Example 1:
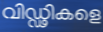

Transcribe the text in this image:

വിഡ്ഢികളെ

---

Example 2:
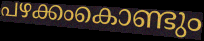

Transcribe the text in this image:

പഴക്കംകൊണ്ടും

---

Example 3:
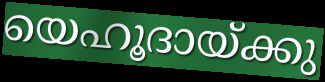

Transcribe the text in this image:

യെഹൂദായ്ക്കു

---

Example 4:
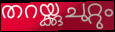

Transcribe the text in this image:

തറയ്ക്കുചുറ്റും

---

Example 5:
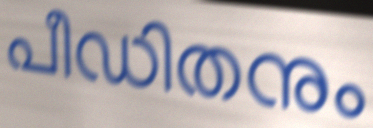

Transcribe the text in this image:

പീഡിതനും